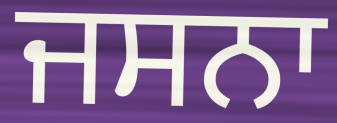
ਜਸਨਾ